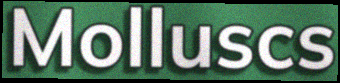
Molluscs